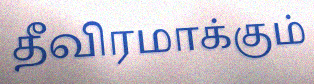
தீவிரமாக்கும்